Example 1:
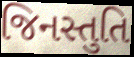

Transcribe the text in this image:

જિનસ્તુતિ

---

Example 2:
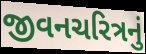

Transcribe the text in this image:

જીવનચરિત્રનું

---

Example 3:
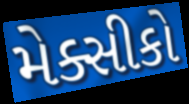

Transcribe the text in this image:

મેક્સીકો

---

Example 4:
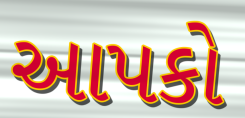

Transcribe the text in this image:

આપકો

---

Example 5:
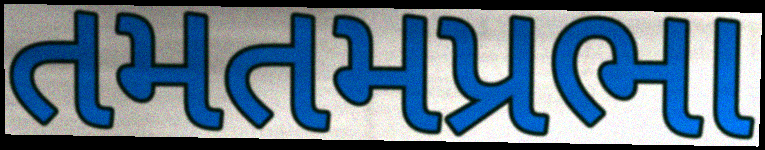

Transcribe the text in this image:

તમતમપ્રભા